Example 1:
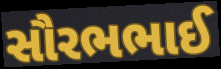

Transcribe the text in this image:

સૌરભભાઈ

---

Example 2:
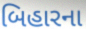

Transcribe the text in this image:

બિહારના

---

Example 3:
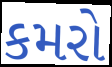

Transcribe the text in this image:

કમરો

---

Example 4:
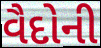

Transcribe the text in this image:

વૈદોની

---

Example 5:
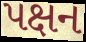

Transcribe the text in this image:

પક્ષન